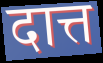
दात्त